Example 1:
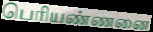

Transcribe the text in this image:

பெரியண்ணனை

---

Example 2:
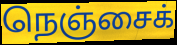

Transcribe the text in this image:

நெஞ்சைக்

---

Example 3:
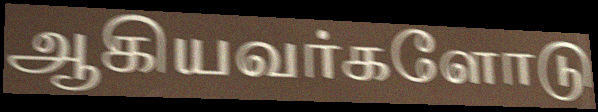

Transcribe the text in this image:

ஆகியவர்களோடு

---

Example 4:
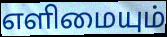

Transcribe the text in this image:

எளிமையும்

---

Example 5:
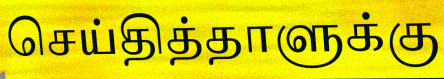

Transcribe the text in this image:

செய்தித்தாளுக்கு